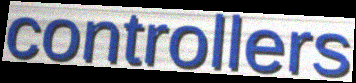
controllers